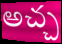
అచ్చ